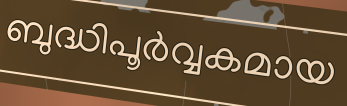
ബുദ്ധിപൂർവ്വകമായ